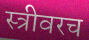
स्त्रीवरच